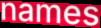
names